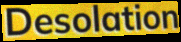
Desolation